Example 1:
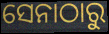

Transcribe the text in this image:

ସେନାଠାରୁ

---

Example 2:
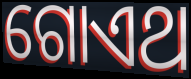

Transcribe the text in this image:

ଗୋଏଥ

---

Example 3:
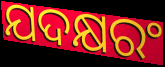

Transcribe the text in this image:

ଯଦକ୍ଷରଂ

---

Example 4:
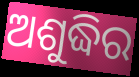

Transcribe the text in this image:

ଅଶୁଦ୍ଧିର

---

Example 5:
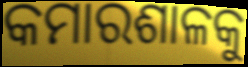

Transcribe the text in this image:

କମାରଶାଳକୁ